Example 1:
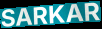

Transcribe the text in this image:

SARKAR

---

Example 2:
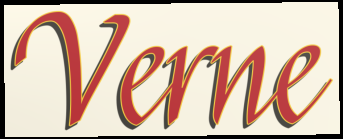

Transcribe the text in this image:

Verne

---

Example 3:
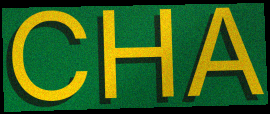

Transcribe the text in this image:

CHA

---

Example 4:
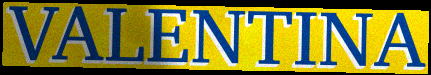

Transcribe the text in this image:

VALENTINA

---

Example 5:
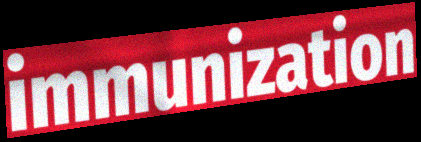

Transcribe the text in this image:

immunization